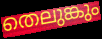
തെലുങ്കും